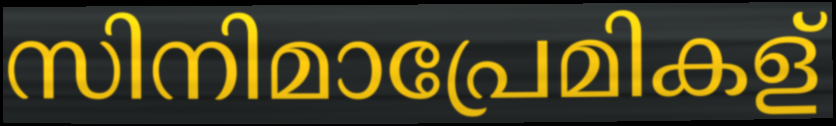
സിനിമാപ്രേമികള്